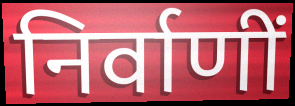
निर्वाणीं